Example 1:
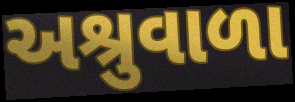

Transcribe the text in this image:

અશ્રુવાળા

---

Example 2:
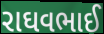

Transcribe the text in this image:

રાઘવભાઈ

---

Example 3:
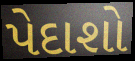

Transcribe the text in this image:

પેદાશો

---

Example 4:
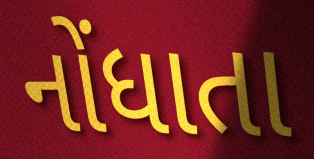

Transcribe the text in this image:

નોંધાતા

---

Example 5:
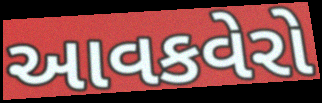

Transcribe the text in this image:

આવકવેરો